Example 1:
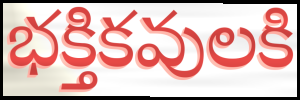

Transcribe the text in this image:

భక్తికవులకి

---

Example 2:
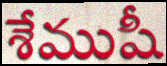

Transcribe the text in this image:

శేముషీ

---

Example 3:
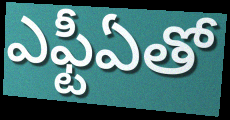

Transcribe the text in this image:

ఎఫ్టీఏతో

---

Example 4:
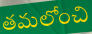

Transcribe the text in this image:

తమలోంచి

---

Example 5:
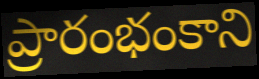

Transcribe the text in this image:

ప్రారంభంకాని